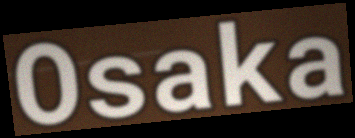
Osaka